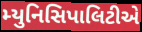
મ્યુનિસિપાલિટીએ